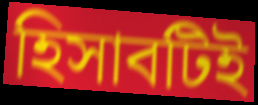
হিসাবটিই